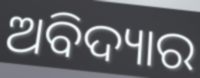
ଅବିଦ୍ୟାର